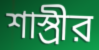
শাস্ত্রীর